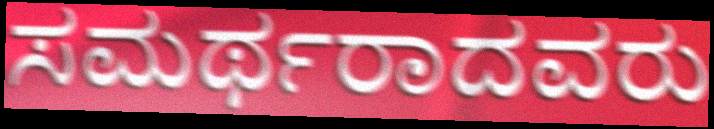
ಸಮರ್ಥರಾದವರು